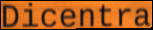
Dicentra